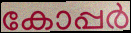
കോപ്പർ